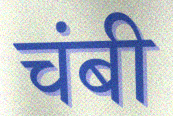
चंबी